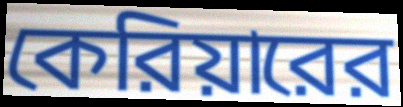
কেরিয়ারের